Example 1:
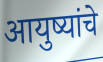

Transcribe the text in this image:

आयुष्यांचे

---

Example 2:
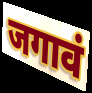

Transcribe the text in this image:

जगावं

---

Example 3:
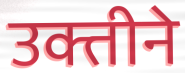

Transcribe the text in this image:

उक्तीने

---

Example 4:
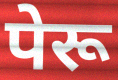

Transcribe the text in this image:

पेरू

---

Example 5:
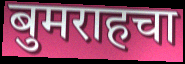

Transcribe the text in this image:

बुमराहचा